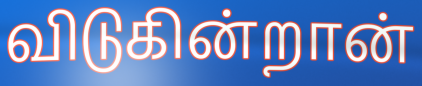
விடுகின்றான்